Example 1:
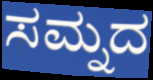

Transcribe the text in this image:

ಸಮ್ನದ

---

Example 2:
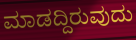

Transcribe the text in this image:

ಮಾಡದ್ದಿರುವುದು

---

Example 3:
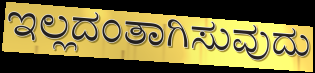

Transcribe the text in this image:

ಇಲ್ಲದಂತಾಗಿಸುವುದು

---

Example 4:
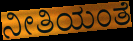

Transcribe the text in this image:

ನೀತಿಯಂತೆ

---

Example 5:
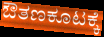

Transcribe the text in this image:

ಔತಣಕೂಟಕ್ಕೆ